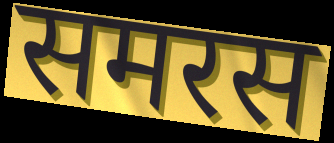
समरस